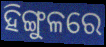
ହିଙ୍ଗୁଳରେ